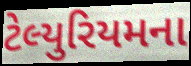
ટેલ્યુરિયમના